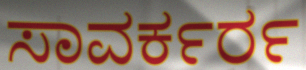
ಸಾವರ್ಕರ್ರ